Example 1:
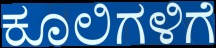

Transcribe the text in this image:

ಕೂಲಿಗಳಿಗೆ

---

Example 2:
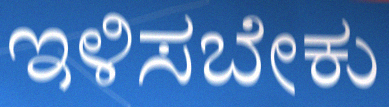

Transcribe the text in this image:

ಇಳಿಸಬೇಕು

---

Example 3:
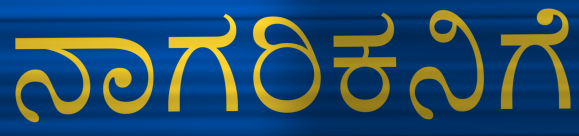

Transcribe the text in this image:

ನಾಗರಿಕನಿಗೆ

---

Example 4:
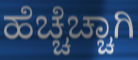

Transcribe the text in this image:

ಹೆಚ್ಚೆಚ್ಚಾಗಿ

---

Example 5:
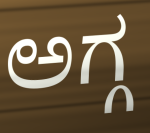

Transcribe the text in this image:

ಅಗ್ಗ